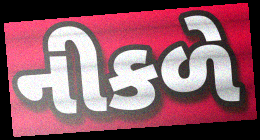
નીકળે